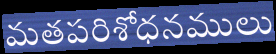
మతపరిశోధనములు